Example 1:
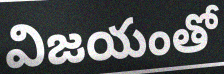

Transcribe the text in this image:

విజయంతో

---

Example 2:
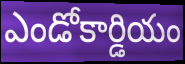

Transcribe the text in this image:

ఎండోకార్డియం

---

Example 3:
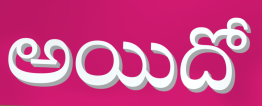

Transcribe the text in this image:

అయిదో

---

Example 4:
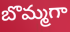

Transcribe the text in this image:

బొమ్మగా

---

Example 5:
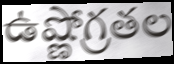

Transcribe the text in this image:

ఉష్ణోగ్రతల